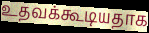
உதவக்கூடியதாக